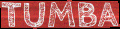
TUMBA